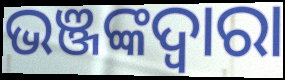
ଭଞ୍ଜଙ୍କଦ୍ୱାରା